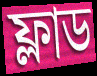
ফ্লাড